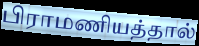
பிராமணியத்தால்